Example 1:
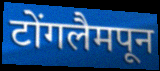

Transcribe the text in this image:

टोंगलैमपून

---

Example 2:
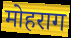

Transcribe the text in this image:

मोहराग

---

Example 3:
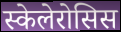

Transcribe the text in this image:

स्केलेरोसिस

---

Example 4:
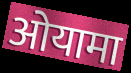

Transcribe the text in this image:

ओयामा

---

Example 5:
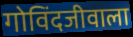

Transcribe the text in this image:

गोविंदजीवाला